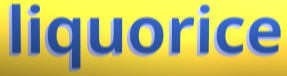
liquorice